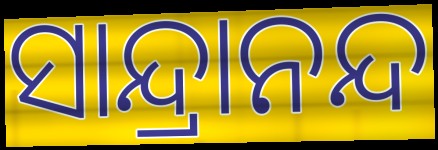
ସାନ୍ଦ୍ରାନନ୍ଦ